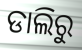
ଡାଲିରୁ